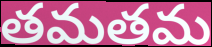
తమతమ